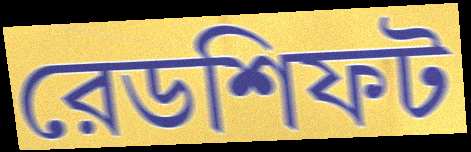
রেডশিফট